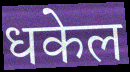
धकेल